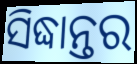
ସିଦ୍ଧାନ୍ତର